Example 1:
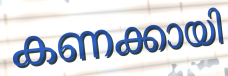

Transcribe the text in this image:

കണക്കായി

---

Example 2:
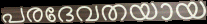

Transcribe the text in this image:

പരദേവതയായ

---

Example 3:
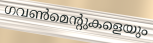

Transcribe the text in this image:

ഗവൺമെന്റുകളെയും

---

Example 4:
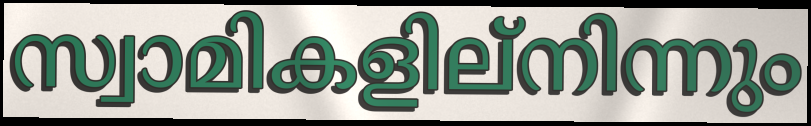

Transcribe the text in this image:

സ്വാമികളില്നിന്നും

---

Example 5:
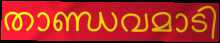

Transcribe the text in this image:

താണ്ഡവമാടി